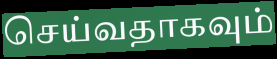
செய்வதாகவும்